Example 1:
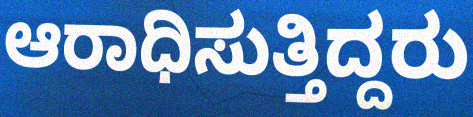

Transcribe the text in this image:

ಆರಾಧಿಸುತ್ತಿದ್ದರು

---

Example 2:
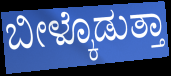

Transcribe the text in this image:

ಬೀಳ್ಕೊಡುತ್ತಾ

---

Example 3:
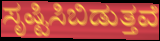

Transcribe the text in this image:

ಸೃಷ್ಟಿಸಿಬಿಡುತ್ತವೆ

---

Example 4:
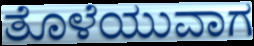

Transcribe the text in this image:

ತೊಳೆಯುವಾಗ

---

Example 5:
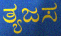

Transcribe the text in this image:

ತ್ಯಜಸ